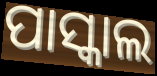
ପାସ୍କାଲ